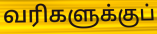
வரிகளுக்குப்